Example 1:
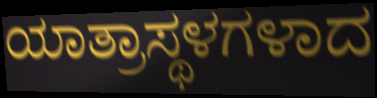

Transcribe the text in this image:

ಯಾತ್ರಾಸ್ಥಳಗಳಾದ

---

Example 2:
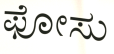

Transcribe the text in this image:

ಫೋಸು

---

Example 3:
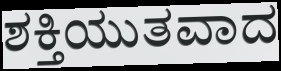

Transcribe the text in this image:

ಶಕ್ತಿಯುತವಾದ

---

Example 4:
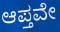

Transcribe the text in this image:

ಆಪ್ತವೇ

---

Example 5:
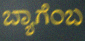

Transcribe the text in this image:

ಬ್ಯಾಗೆಂಬ